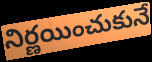
నిర్ణయించుకునే